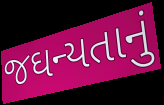
જઘન્યતાનું